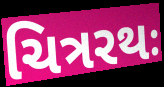
ચિત્રરથઃ